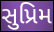
સુપ્રિમ